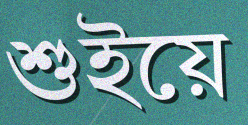
শুইয়ে